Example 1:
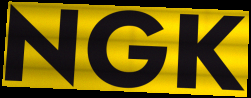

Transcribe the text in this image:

NGK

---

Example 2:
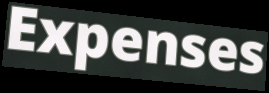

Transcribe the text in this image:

Expenses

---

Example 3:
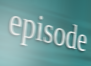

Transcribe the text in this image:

episode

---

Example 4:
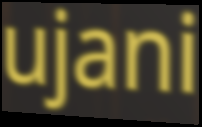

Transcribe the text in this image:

ujani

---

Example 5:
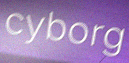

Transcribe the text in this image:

cyborg